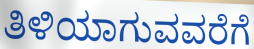
ತಿಳಿಯಾಗುವವರೆಗೆ